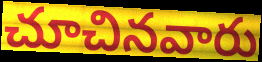
చూచినవారు